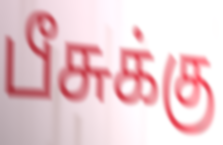
பீசுக்கு